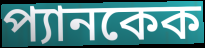
প্যানকেক